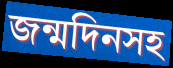
জন্মদিনসহ